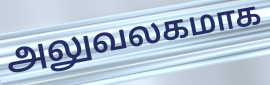
அலுவலகமாக